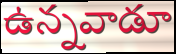
ఉన్నవాడూ